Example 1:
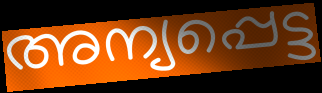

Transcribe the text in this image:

അന്യപ്പെട്ട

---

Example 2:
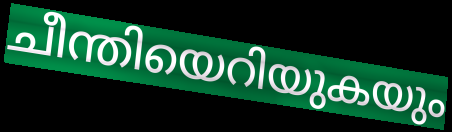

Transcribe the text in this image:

ചീന്തിയെറിയുകയും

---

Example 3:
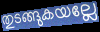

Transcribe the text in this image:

തുടങ്ങുകയല്ലേ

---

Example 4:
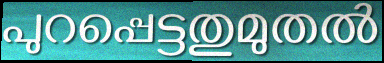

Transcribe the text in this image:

പുറപ്പെട്ടതുമുതൽ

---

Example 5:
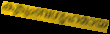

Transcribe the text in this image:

കുടുംബഗൃഹമായ